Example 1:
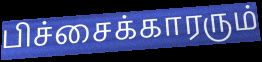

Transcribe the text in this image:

பிச்சைக்காரரும்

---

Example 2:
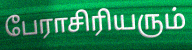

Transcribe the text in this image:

பேராசிரியரும்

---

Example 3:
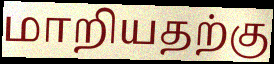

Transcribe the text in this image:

மாறியதற்கு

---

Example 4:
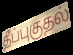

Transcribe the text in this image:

தீப்புகுதல்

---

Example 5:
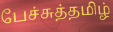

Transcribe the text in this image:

பேச்சுத்தமிழ்